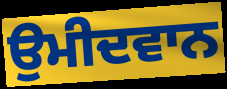
ਉਮੀਦਵਾਨ